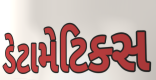
ડેટામેટિક્સ